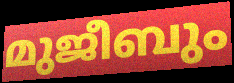
മുജീബും